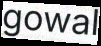
gowal